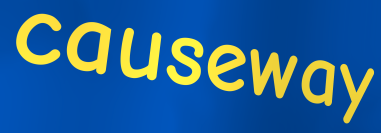
causeway